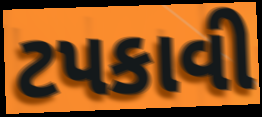
ટપકાવી